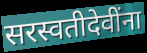
सरस्वतीदेवींना